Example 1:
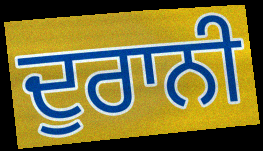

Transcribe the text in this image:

ਦੁਰਾਨੀ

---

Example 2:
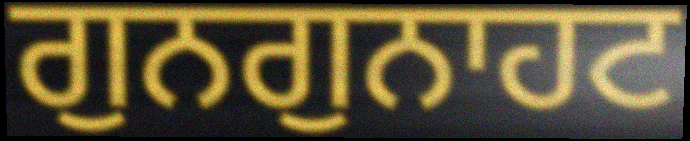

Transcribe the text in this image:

ਗੁਨਗੁਨਾਹਟ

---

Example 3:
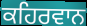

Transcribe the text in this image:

ਕਹਿਰਵਾਨ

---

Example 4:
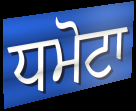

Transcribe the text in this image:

ਧਮੋਟਾ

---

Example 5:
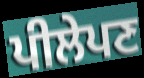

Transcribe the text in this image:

ਪੀਲੇਪਣ